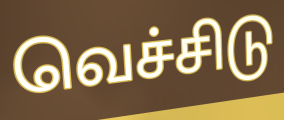
வெச்சிடு